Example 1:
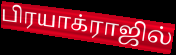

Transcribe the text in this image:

பிரயாக்ராஜில்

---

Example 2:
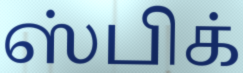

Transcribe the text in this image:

ஸ்பிக்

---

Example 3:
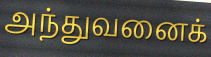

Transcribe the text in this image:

அந்துவனைக்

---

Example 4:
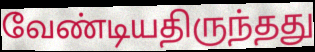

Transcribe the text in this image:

வேண்டியதிருந்தது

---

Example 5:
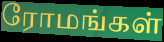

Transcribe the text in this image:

ரோமங்கள்